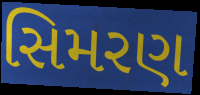
સિમરણ